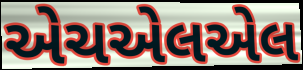
એચએલએલ